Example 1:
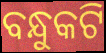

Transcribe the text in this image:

ବନ୍ଧୁକଟି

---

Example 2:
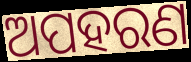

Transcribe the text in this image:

ଅପହରଣ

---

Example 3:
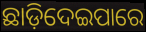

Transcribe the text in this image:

ଛାଡ଼ିଦେଇପାରେ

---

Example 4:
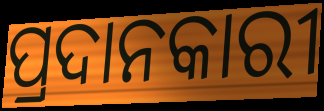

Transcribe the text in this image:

ପ୍ରଦାନକାରୀ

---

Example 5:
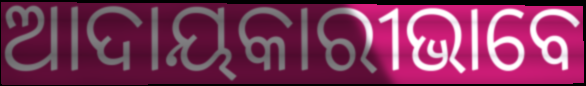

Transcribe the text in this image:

ଆଦାୟକାରୀଭାବେ